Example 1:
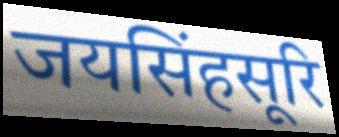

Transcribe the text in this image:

जयसिंहसूरि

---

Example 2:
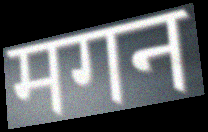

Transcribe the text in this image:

मगन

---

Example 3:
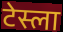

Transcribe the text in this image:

टेस्ला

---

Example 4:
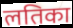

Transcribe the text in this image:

लतिका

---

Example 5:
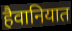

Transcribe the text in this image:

हैवानियात